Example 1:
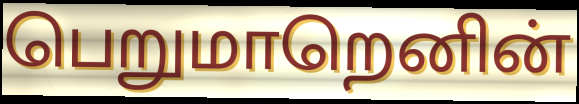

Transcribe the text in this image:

பெறுமாறெனின்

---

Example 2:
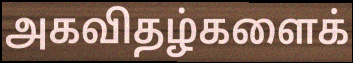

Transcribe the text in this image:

அகவிதழ்களைக்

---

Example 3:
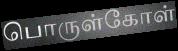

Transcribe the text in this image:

பொருள்கோள்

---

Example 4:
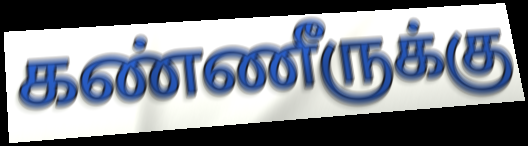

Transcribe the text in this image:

கண்ணீருக்கு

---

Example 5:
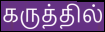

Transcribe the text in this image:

கருத்தில்